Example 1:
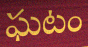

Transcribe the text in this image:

ఘటం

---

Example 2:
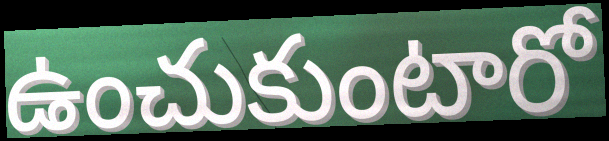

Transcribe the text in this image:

ఉంచుకుంటారో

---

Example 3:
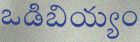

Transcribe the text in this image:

ఒడిబియ్యం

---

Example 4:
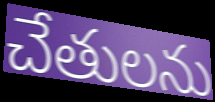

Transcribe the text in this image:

చేతులను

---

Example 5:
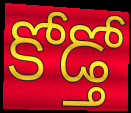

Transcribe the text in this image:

కోడ్తో